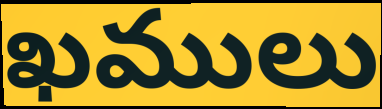
ఖములు